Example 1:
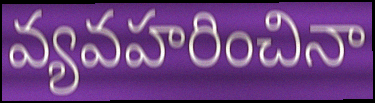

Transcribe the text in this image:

వ్యవహరించినా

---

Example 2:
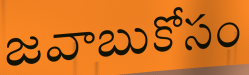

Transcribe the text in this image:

జవాబుకోసం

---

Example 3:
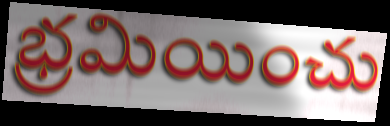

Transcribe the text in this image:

భ్రమియించు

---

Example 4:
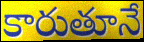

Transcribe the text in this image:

కారుతూనే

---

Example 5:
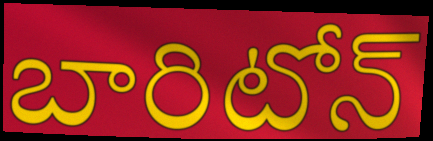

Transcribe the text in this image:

బారిటోన్